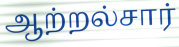
ஆற்றல்சார்